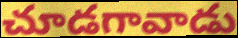
చూడగావాడు